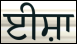
ਈਸ਼ਾ